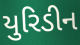
યુરિડીન